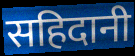
सहिदानी